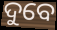
ଦୁବେ